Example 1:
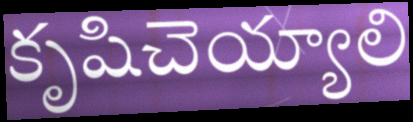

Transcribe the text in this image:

కృషిచెయ్యాలి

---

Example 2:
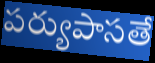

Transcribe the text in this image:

పర్యుపాసతే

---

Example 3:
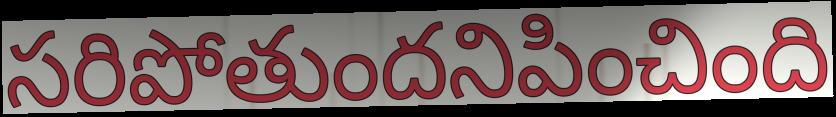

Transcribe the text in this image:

సరిపోతుందనిపించింది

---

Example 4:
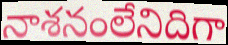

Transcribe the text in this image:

నాశనంలేనిదిగా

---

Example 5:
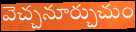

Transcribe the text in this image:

వెచ్చనూర్చుచుం